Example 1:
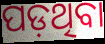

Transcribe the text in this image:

ପଡ଼ଥିବା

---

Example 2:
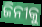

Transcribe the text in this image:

ଜିନୀକୁ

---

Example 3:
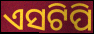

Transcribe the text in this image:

ଏସଟିପି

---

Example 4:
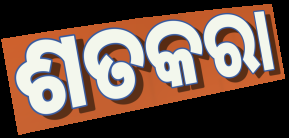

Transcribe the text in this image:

ଶତକରା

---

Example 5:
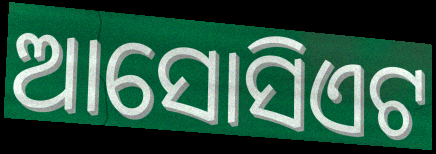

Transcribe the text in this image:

ଆସୋସିଏଟ